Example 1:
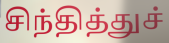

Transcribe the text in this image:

சிந்தித்துச்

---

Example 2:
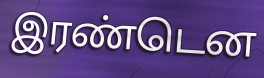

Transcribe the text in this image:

இரண்டென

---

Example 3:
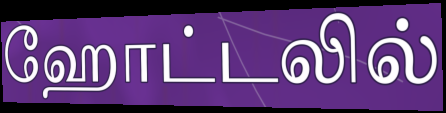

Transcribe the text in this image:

ஹோட்டலில்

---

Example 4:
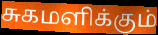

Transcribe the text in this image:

சுகமளிக்கும்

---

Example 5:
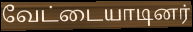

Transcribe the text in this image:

வேட்டையாடினர்